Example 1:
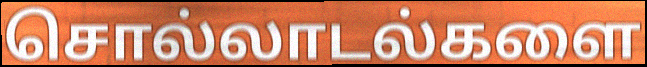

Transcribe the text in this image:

சொல்லாடல்களை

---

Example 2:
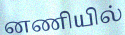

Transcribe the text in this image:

னணியில்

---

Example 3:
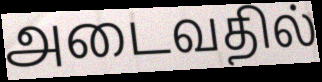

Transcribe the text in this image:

அடைவதில்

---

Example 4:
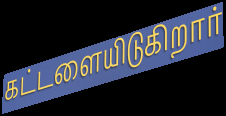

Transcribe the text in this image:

கட்டளையிடுகிறார்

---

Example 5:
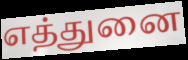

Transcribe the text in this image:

எத்துனை